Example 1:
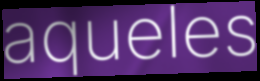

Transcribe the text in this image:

aqueles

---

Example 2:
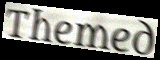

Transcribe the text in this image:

Themed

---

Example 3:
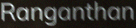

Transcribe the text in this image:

Ranganthan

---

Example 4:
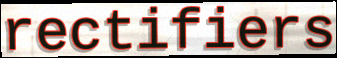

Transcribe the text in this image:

rectifiers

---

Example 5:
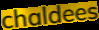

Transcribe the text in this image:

chaldees